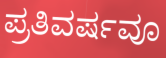
ಪ್ರತಿವರ್ಷವೂ